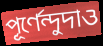
পূর্ণেন্দুদাও